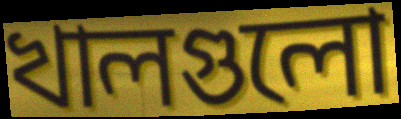
খালগুলো